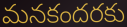
మనకందరకు